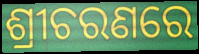
ଶ୍ରୀଚରଣରେ